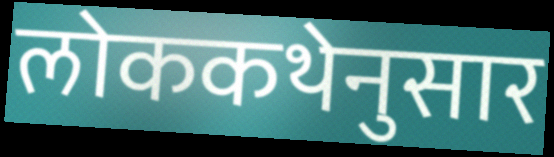
लोककथेनुसार